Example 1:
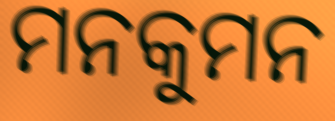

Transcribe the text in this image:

ମନକୁମନ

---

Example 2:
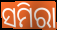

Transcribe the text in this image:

ସମିରା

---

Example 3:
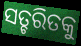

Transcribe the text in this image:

ସତ୍ଚରିତକୁ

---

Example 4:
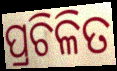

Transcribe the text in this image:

ପ୍ରଚିଳିତ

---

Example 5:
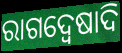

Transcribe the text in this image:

ରାଗଦ୍ୱେଷାଦି